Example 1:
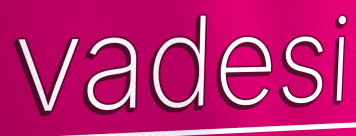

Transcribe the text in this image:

vadesi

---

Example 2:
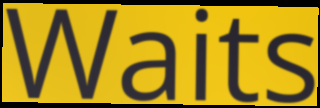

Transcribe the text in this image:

Waits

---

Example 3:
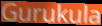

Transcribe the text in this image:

Gurukula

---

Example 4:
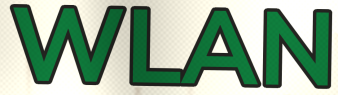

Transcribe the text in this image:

WLAN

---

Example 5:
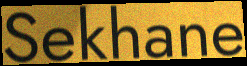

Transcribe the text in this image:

Sekhane